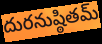
దురనుష్ఠితమ్